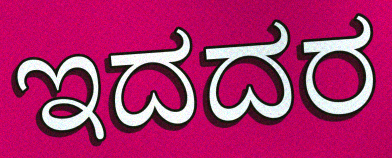
ಇದದರ